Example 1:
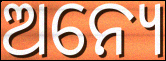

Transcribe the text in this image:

ଅନ୍ୟେ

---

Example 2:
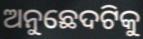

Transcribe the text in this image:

ଅନୁଛେଦଟିକୁ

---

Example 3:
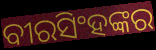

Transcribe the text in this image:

ବୀରସିଂହଙ୍କର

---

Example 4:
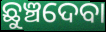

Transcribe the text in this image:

ଛୁଞ୍ଚଦେବା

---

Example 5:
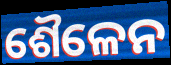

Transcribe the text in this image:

ଶୈଳେନ